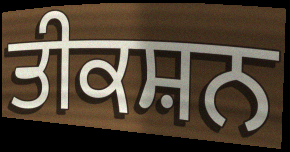
ਤੀਕਸ਼ਨ